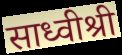
साध्वीश्री